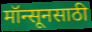
मॉन्सूनसाठी